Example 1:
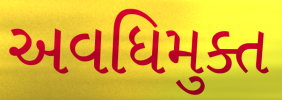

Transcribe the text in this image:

અવધિમુક્ત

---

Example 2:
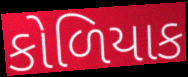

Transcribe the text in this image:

કોળિયાક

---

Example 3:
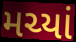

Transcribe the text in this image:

મચ્યાં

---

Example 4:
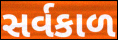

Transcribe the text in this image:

સર્વકાળ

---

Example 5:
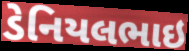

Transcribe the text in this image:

ડેનિયલભાઇ